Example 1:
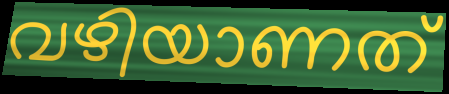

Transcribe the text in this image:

വഴിയാണത്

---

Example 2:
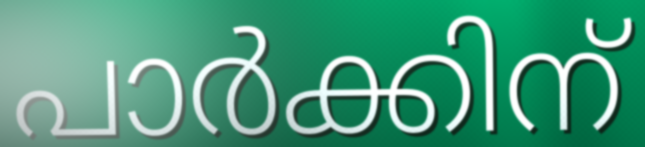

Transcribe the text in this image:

പാർക്കിന്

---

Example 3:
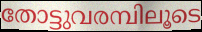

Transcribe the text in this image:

തോട്ടുവരമ്പിലൂടെ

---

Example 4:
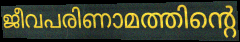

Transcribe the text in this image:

ജീവപരിണാമത്തിന്റെ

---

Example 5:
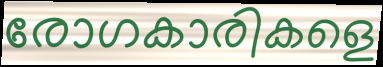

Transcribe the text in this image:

രോഗകാരികളെ